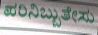
ಪರಿನಿಬ್ಬುತೇಸು